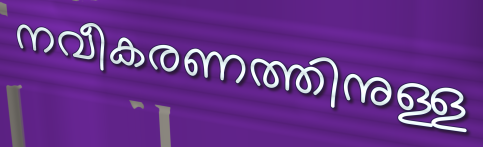
നവീകരണത്തിനുള്ള